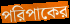
পরিপাকের